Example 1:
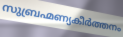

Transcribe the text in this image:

സുബ്രഹ്മണ്യകീർത്തനം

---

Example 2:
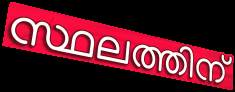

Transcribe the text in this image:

സ്ഥലത്തിന്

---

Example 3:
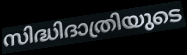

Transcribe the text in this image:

സിദ്ധിദാത്രിയുടെ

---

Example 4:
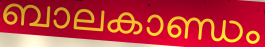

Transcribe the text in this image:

ബാലകാണ്ഡം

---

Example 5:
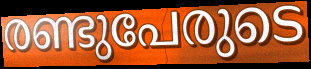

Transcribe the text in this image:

രണ്ടുപേരുടെ